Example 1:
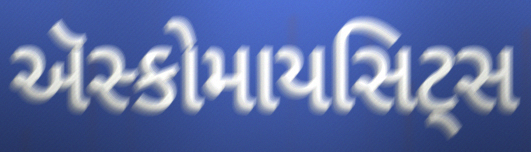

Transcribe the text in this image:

ઍસ્કોમાયસિટ્સ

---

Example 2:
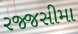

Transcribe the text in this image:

રજ્જસીમા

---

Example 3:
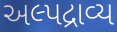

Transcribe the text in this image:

અલ્પદ્રાવ્ય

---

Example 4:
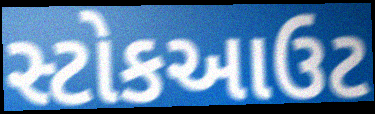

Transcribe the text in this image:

સ્ટોકઆઉટ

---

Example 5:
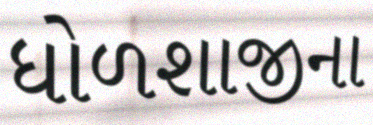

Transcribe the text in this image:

ધોળશાજીના